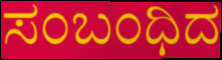
ಸಂಬಂಧಿದ